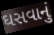
ઘસવાનું